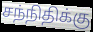
சந்நிதிக்கு